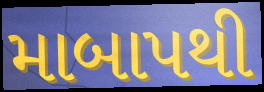
માબાપથી